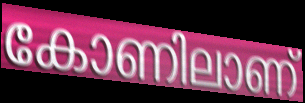
കോണിലാണ്